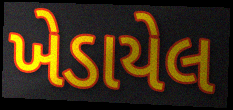
ખેડાયેલ